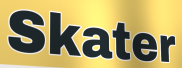
Skater